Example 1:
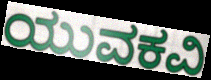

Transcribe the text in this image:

ಯುವಕವಿ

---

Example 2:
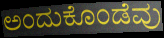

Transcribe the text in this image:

ಅಂದುಕೊಂಡೆವು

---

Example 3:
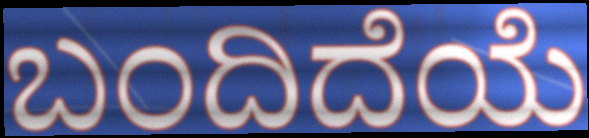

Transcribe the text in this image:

ಬಂದಿದೆಯೆ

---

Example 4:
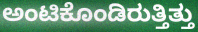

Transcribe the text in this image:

ಅಂಟಿಕೊಂಡಿರುತ್ತಿತ್ತು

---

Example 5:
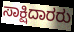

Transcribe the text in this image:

ಸಾಕ್ಷಿದಾರರು